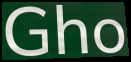
Gho